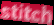
stitch